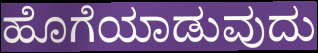
ಹೊಗೆಯಾಡುವುದು